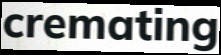
cremating